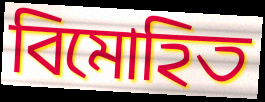
বিমোহিত